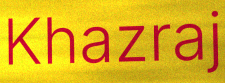
Khazraj